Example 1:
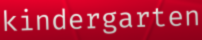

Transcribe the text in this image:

kindergarten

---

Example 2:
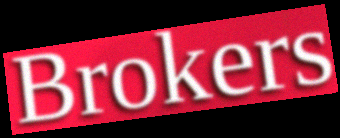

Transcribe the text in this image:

Brokers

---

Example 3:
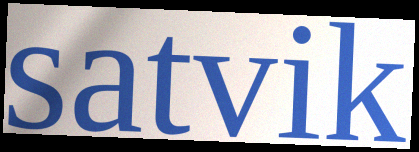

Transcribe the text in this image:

satvik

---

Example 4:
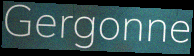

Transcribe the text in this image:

Gergonne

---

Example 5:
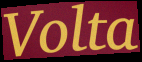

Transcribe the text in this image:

Volta